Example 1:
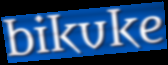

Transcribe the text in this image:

bikuke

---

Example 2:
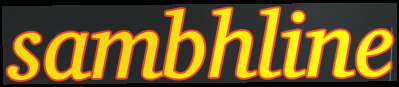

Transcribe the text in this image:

sambhline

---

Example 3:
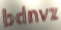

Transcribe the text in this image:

bdnvz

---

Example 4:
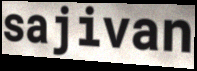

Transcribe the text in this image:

sajivan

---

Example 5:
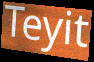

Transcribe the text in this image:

Teyit